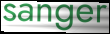
sanger